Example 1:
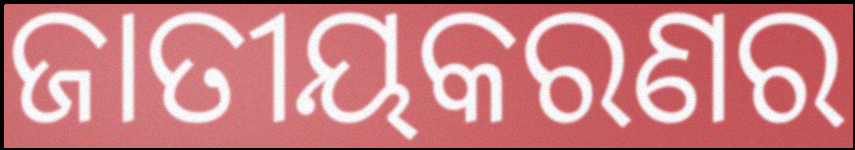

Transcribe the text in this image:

ଜାତୀୟକରଣର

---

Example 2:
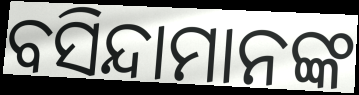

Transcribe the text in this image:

ବସିନ୍ଦାମାନଙ୍କ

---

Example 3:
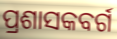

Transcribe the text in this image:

ପ୍ରଶାସକବର୍ଗ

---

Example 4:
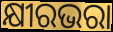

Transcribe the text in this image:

କ୍ଷୀରଭରା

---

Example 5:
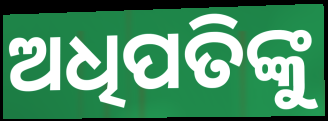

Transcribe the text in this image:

ଅଧିପତିଙ୍କୁ